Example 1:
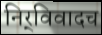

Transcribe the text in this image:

निर्विवादच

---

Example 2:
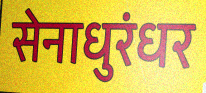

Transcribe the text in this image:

सेनाधुरंधर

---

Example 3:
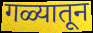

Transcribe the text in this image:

गळ्यातून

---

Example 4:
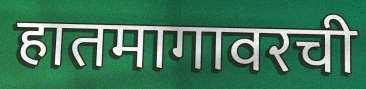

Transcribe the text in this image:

हातमागावरची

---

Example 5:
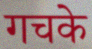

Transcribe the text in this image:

गचके